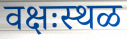
वक्षःस्थळ